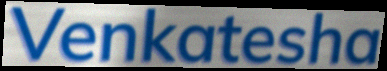
Venkatesha